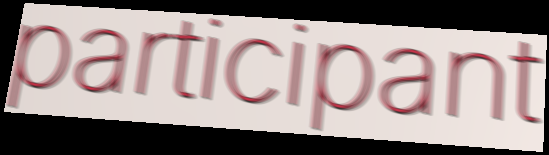
participant